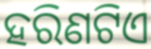
ହରିଣଟିଏ